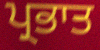
ਪ੍ਰਭਾਤ